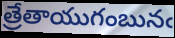
త్రేతాయుగంబునఁ